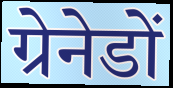
ग्रेनेडों